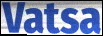
Vatsa